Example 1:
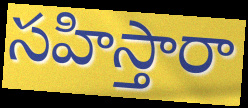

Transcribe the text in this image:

సహిస్తారా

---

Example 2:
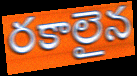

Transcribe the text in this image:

రకాలైన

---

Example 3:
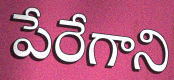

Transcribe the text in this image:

పేరేగాని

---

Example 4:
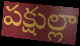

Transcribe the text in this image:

పక్షుల్లా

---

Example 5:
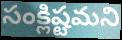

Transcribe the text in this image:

సంక్లిష్టమని